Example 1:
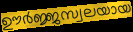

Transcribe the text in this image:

ഊർജ്ജസ്വലയായ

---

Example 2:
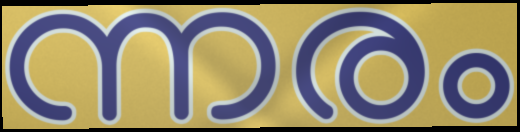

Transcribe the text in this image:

ന്നരം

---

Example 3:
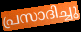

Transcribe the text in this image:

പ്രസാദിച്ചു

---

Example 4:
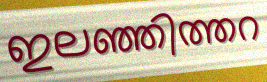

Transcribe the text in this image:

ഇലഞ്ഞിത്തറ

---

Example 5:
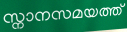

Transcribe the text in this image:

സ്നാനസമയത്ത്